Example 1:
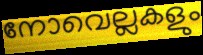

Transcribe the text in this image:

നോവെല്ലകളും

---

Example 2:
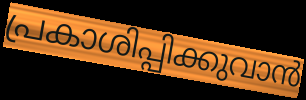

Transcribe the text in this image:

പ്രകാശിപ്പിക്കുവാൻ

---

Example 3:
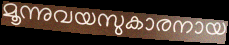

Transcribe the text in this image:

മൂന്നുവയസുകാരനായ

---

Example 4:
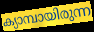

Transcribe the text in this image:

ക്യാമ്പായിരുന്ന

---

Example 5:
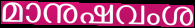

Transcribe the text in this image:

മാനുഷവംശ